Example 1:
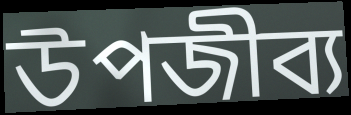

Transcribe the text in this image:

উপজীব্য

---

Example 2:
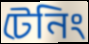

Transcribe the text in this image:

টেনিং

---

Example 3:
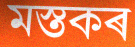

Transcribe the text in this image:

মস্তকৰ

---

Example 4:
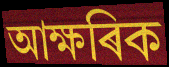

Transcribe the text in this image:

আক্ষৰিক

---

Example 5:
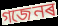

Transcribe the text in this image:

গজেনৰ